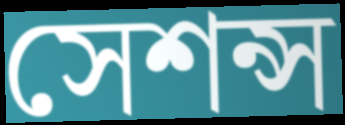
সেশন্স